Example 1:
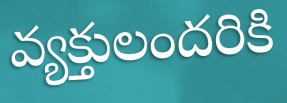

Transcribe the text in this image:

వ్యక్తులందరికి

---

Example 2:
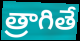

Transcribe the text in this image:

త్రాగితే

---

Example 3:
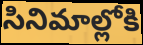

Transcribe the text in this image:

సినిమాల్లోకి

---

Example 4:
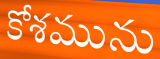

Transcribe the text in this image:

కోశమును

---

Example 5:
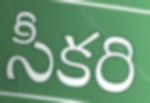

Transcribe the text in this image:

సీకరి